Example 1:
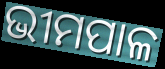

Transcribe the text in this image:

ଭୀମପାଳ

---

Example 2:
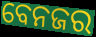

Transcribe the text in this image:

ବେନଜର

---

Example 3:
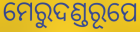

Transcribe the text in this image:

ମେରୁଦଣ୍ଡରୂପେ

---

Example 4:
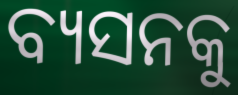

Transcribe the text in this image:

ବ୍ୟସନକୁ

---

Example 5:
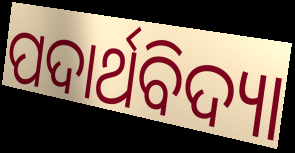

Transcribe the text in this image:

ପଦାର୍ଥବିଦ୍ୟା